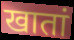
खातां